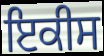
ਇਕੀਸ